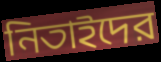
নিতাইদের